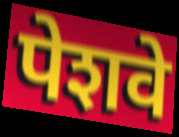
पेशवे